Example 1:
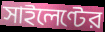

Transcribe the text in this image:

সাইলেণ্টের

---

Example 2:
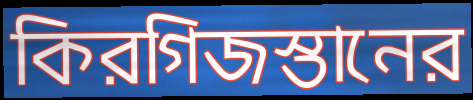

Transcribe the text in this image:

কিরগিজস্তানের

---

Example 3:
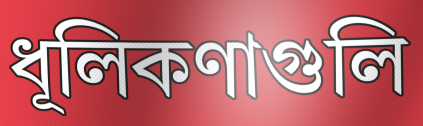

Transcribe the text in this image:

ধূলিকণাগুলি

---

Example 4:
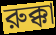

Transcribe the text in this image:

রুক্কা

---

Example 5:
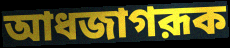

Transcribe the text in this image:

আধজাগরূক